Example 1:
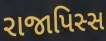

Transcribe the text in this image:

રાજાપિસ્સ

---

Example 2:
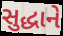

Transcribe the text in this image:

સુદ્ધાને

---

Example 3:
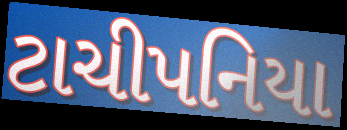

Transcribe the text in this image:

ટાચીપનિયા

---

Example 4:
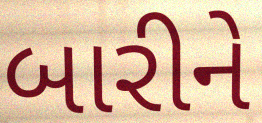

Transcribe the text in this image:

બારીને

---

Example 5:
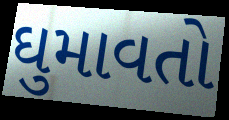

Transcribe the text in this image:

ઘુમાવતો